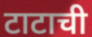
टाटाची